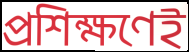
প্রশিক্ষণেই